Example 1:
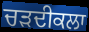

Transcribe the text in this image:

ਚੜਦੀਕਲਾ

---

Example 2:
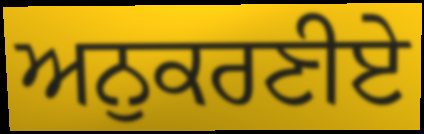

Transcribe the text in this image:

ਅਨੁਕਰਣੀਏ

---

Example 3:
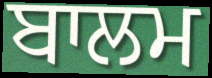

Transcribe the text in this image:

ਬਾਲਮ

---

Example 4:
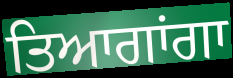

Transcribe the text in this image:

ਤਿਆਗਾਂਗਾ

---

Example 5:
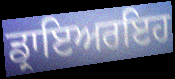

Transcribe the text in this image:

ਡ੍ਰਾਇਅਰਇਹ